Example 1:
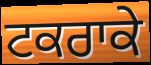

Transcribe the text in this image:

ਟਕਰਾਕੇ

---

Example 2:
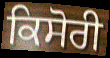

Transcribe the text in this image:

ਕਿਸੋਰੀ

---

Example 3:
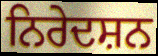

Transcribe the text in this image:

ਨਿਰੇਦਸ਼ਨ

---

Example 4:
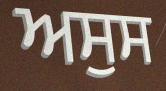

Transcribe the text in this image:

ਅਸੁਸ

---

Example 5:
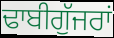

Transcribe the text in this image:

ਢਾਬੀਗੁੱਜਰਾਂ